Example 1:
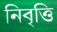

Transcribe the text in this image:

নিবৃত্তি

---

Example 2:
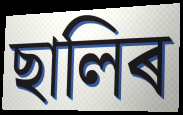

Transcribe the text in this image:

ছালিৰ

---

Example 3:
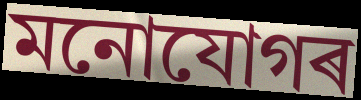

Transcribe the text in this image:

মনোযোগৰ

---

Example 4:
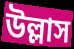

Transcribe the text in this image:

উল্লাস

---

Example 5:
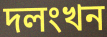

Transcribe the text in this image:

দলংখন